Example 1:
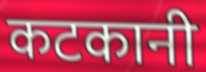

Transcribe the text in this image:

कटकानी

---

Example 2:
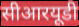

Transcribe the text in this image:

सीआरयूडी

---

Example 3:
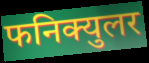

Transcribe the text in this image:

फनिक्युलर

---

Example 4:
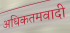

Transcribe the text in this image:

अधिकतमवादी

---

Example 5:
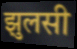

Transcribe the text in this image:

झुलसी